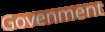
Govenment